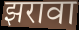
झरावा